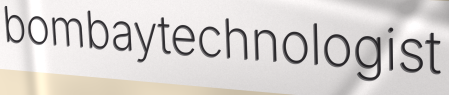
bombaytechnologist